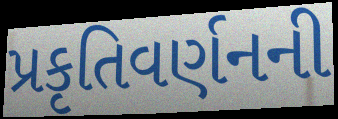
પ્રકૃતિવર્ણનની